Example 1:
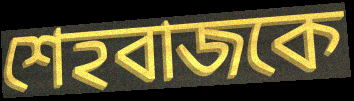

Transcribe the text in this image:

শেহবাজকে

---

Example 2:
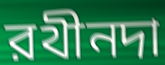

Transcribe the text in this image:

রথীনদা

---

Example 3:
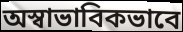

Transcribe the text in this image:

অস্বাভাবিকভাবে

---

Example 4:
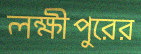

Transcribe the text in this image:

লক্ষীপুরের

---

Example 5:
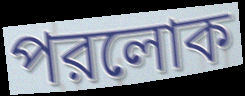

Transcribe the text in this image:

পরলোক